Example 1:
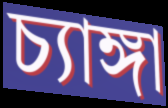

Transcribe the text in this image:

চ্যাঙ্গা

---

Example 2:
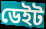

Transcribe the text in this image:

ডেইট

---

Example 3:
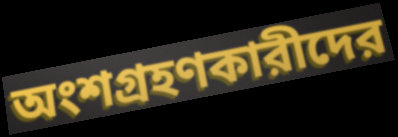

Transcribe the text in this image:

অংশগ্রহণকারীদের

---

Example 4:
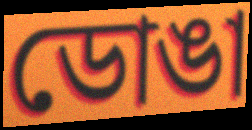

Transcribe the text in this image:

ডোঙা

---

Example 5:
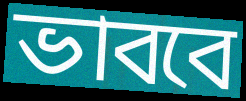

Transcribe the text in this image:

ভাববে